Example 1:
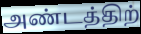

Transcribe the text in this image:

அண்டத்திற்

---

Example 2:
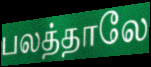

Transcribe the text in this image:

பலத்தாலே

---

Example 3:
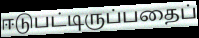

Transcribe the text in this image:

ஈடுபட்டிருப்பதைப்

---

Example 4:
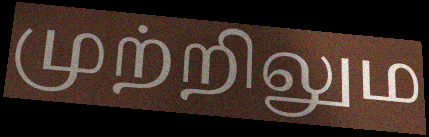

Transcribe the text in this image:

முற்றிலும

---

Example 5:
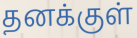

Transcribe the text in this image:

தனக்குள்